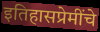
इतिहासप्रेमींचे